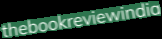
thebookreviewindia